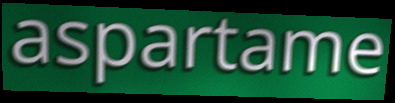
aspartame